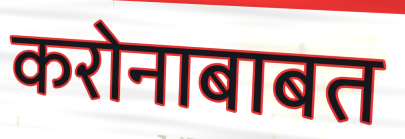
करोनाबाबत